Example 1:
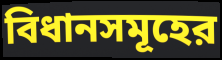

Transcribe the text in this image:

বিধানসমূহের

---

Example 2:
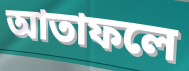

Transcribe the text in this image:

আতাফলে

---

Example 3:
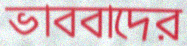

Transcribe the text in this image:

ভাববাদের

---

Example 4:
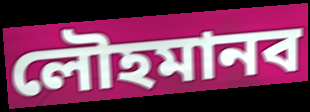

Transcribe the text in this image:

লৌহমানব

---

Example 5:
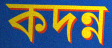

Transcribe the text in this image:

কদন্ন